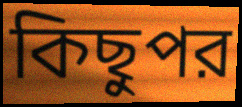
কিছুপর